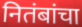
नितंबांचा